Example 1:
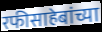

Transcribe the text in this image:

रफीसाहेबांच्या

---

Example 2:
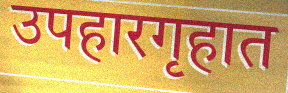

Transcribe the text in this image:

उपहारगृहात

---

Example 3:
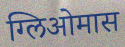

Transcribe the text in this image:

ग्लिओमास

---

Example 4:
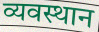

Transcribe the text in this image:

व्यवस्थान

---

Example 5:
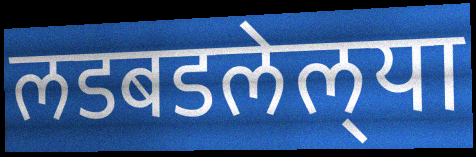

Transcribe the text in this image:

लडबडलेल्या